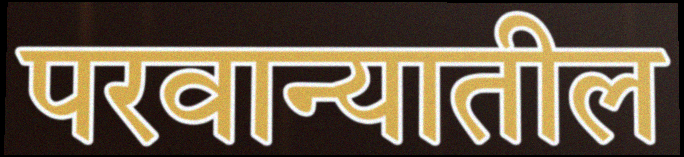
परवान्यातील